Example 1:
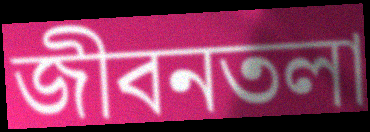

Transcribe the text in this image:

জীবনতলা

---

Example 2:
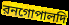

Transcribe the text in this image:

রনগোপালদি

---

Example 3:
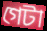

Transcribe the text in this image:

গেটা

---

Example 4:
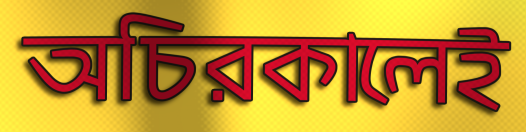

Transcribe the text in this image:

অচিরকালেই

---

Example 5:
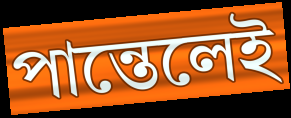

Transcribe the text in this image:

পান্তেলেই